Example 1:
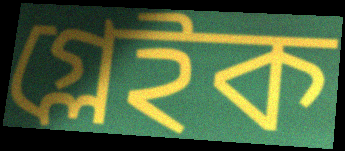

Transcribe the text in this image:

গ্লেইক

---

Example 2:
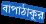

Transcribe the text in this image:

বাপাঠাকুর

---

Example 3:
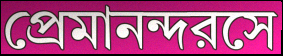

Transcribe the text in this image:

প্রেমানন্দরসে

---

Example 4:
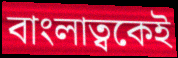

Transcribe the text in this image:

বাংলাত্বকেই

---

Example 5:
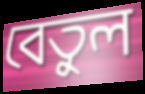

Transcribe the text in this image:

বেতুল